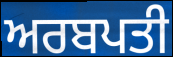
ਅਰਬਪਤੀ